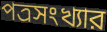
পত্রসংখ্যার